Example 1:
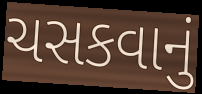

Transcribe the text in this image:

ચસકવાનું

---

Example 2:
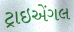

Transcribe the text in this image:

ટ્રાઇએંગલ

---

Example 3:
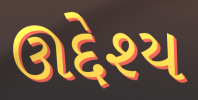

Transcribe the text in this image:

ઊદ્દેશ્ય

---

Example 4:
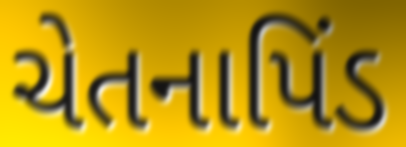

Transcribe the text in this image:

ચેતનાપિંડ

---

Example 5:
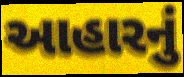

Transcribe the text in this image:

આહારનું